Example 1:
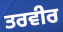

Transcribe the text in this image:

ਤਰਵੀਰ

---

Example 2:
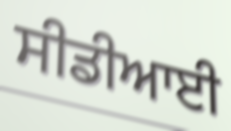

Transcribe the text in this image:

ਸੀਡੀਆਈ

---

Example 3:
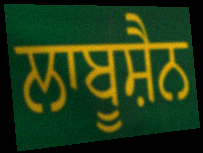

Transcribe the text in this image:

ਲਾਬੂਸ਼ੈਨ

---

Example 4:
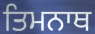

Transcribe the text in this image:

ਤਿਮਨਾਥ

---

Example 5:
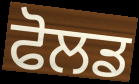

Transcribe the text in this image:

ਫੋਲਡ